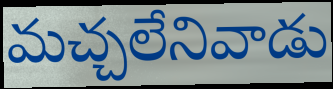
మచ్చలేనివాడు